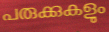
പരുക്കുകളും